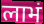
लाभं